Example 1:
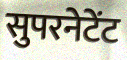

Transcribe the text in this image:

सुपरनेटेंट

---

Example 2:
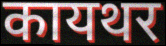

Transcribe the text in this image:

कायथर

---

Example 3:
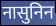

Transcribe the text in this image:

नासुनिन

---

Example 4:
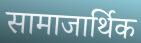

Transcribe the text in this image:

सामाजार्थिक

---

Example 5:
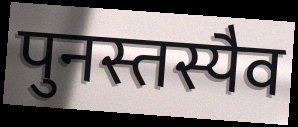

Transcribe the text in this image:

पुनस्तस्यैव